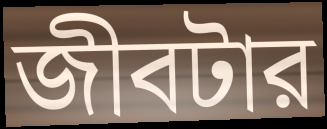
জীবটার